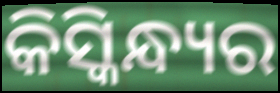
କିସ୍କିନ୍ଧ୍ୟର